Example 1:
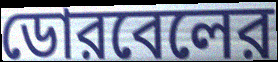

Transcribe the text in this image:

ডোরবেলের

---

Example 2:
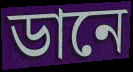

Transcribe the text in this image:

ডানে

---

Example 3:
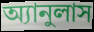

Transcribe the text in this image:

অ্যানুলাস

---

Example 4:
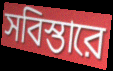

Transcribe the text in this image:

সবিস্তারে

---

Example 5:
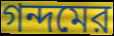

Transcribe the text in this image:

গন্দমের